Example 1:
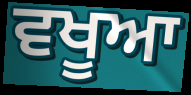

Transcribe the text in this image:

ਵਖੂਆ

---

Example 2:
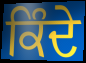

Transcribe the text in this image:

ਕਿੰਦੇ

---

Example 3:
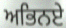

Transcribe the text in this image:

ਅਭਿਨਏ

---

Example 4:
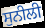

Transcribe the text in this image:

ਸੁਨੀਲੀ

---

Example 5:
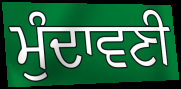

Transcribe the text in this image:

ਮੁੰਦਾਵਣੀ